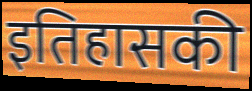
इतिहासकी